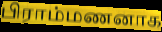
பிராம்மணனாக